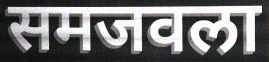
समजवला